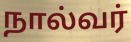
நால்வர்